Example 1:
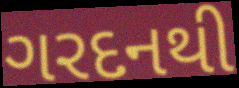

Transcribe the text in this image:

ગરદનથી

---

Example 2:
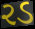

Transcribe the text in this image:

રડ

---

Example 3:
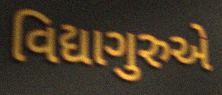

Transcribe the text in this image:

વિદ્યાગુરુએ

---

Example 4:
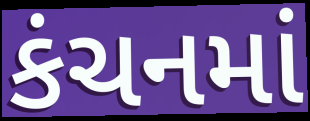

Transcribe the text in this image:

કંચનમાં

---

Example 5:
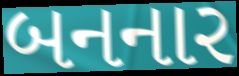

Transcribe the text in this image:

બનનાર